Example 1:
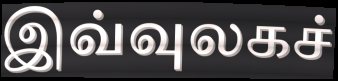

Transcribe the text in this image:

இவ்வுலகச்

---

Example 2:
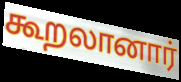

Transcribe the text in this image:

கூறலானார்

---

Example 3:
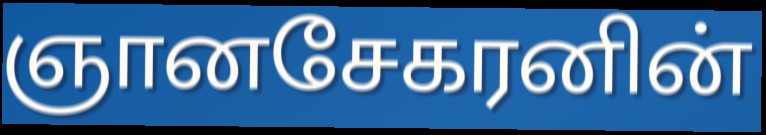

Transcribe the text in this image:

ஞானசேகரனின்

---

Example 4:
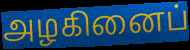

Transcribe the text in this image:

அழகினைப்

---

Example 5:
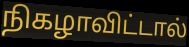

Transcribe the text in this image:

நிகழாவிட்டால்